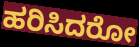
ಹರಿಸಿದರೋ